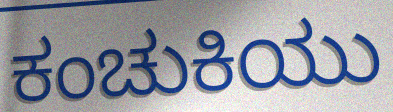
ಕಂಚುಕಿಯು